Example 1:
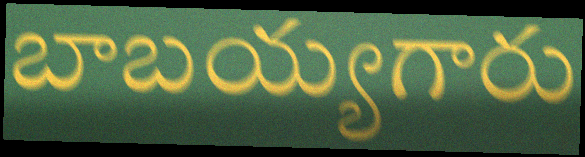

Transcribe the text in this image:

బాబయ్యగారు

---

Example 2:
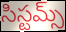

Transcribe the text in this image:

సిస్టమ్స్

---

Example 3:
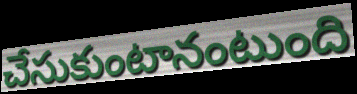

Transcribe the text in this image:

చేసుకుంటానంటుంది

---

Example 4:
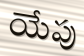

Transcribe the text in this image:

యేపు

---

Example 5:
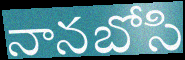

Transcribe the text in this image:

నానబోసి